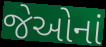
જેઓનાં